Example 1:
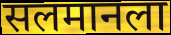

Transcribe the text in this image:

सलमानला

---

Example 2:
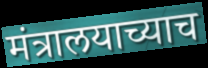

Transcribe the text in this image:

मंत्रालयाच्याच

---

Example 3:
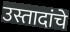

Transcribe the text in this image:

उस्तादांचे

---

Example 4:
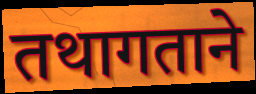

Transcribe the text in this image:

तथागताने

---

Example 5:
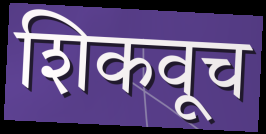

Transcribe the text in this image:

शिकवूच